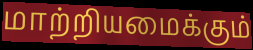
மாற்றியமைக்கும்